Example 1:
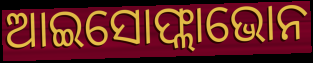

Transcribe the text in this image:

ଆଇସୋଫ୍ଲାଭୋନ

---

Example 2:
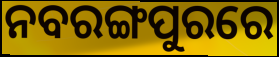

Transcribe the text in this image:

ନବରଙ୍ଗପୁରରେ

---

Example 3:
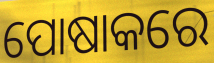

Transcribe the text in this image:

ପୋଷାକରେ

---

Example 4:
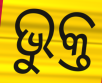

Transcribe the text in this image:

ଭୁକ୍ତ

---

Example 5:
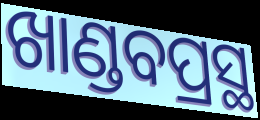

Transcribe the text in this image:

ଖାଣ୍ଡବପ୍ରସ୍ଥ